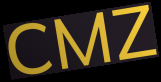
CMZ